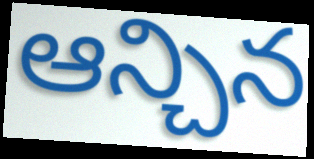
ఆన్చిన